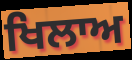
ਖਿਲਾਅ